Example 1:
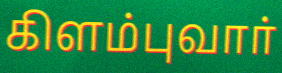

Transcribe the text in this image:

கிளம்புவார்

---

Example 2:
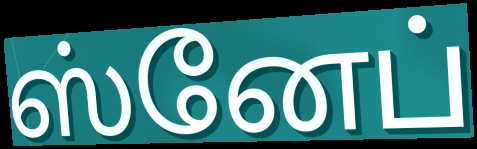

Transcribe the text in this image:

ஸ்னேப்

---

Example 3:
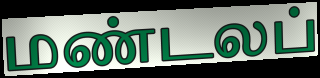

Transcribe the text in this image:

மண்டலப்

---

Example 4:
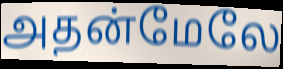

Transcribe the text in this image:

அதன்மேலே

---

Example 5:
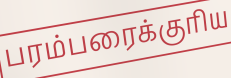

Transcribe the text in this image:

பரம்பரைக்குரிய